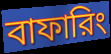
বাফারিং